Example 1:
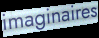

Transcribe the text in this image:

imaginaires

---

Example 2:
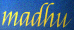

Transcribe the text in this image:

madhu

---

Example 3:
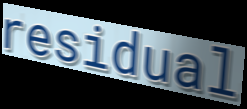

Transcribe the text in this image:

residual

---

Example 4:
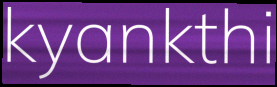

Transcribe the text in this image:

kyankthi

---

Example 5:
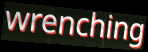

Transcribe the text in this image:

wrenching